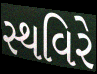
સ્થવિરે